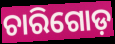
ଚାରିଗୋଡ଼